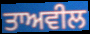
ਤਾਅਵੀਲ